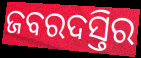
ଜବରଦସ୍ତିର